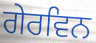
ਗੇਰਵਿਨ